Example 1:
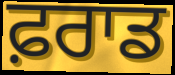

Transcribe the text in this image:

ਫ਼ਰਾਡ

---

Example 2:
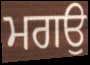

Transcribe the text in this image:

ਮਗਉ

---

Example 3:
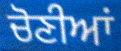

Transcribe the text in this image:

ਚੋਣੀਆਂ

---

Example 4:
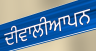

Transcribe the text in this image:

ਦੀਵਾਲੀਆਪਨ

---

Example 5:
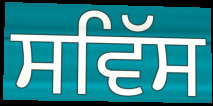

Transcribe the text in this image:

ਸਵਿੱਸ